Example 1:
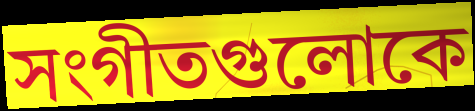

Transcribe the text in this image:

সংগীতগুলোকে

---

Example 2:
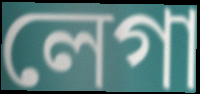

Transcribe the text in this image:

লেগা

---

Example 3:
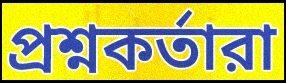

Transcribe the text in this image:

প্রশ্নকর্তারা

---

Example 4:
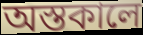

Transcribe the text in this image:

অস্তকালে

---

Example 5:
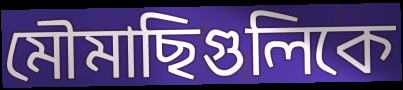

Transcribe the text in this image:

মৌমাছিগুলিকে